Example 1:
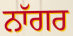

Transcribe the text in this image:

ਨਾੱਗਰ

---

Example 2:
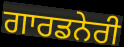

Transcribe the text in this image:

ਗਾਰਡਨੇਰੀ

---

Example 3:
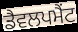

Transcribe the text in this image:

ਡੈਵਲਪਮੈਂਟ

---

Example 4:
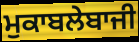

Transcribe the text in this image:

ਮੁਕਾਬਲੇਬਾਜੀ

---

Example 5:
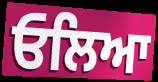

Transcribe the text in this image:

ਓਲਿਆ